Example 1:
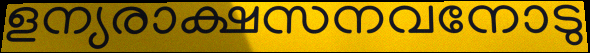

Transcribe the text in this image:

ളന്യരാക്ഷസനവനോടു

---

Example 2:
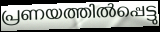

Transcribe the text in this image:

പ്രണയത്തിൽപ്പെട്ടു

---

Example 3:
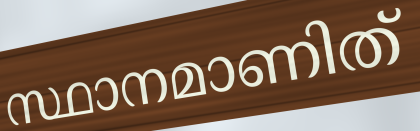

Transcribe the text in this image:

സ്ഥാനമാണിത്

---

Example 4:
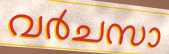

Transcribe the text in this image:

വർചസാ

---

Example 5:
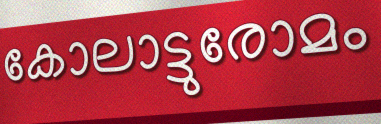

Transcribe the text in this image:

കോലാട്ടുരോമം